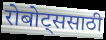
रोबोट्ससाठी